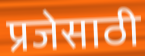
प्रजेसाठी